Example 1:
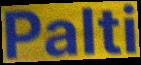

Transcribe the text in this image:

Palti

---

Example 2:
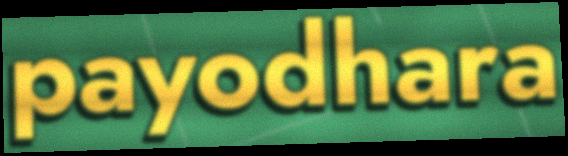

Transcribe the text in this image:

payodhara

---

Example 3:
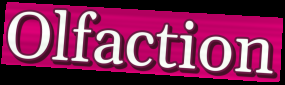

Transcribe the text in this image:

Olfaction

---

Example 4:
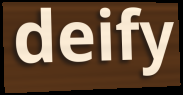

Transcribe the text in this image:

deify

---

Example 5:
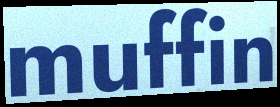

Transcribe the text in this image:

muffin